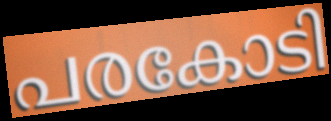
പരകോടി